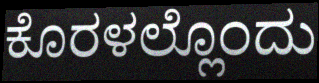
ಕೊರಳಲ್ಲೊಂದು